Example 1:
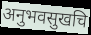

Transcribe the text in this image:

अनुभवसुखचि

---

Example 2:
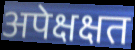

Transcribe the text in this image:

अपेक्षक्षत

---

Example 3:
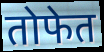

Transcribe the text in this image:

तोफेत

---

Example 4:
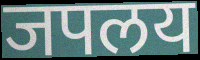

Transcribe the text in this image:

जपलय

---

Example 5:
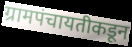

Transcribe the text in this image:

ग्रामपंचायतीकडून